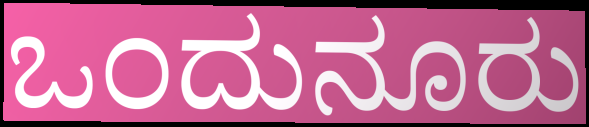
ಒಂದುನೂರು